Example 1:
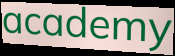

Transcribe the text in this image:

academy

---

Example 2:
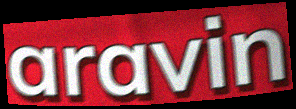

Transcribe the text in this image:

aravin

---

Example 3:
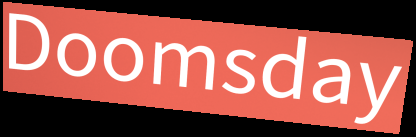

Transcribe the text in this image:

Doomsday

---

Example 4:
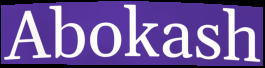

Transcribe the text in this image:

Abokash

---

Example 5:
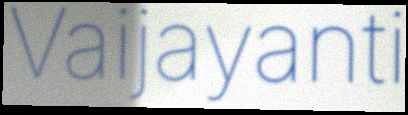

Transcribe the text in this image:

Vaijayanti